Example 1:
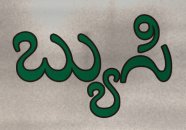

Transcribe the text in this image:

ಬ್ಯುಸಿ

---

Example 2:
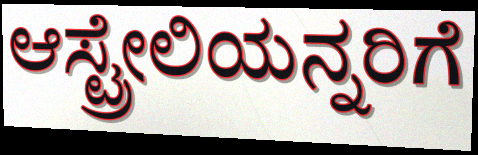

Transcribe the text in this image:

ಆಸ್ಟ್ರೇಲಿಯನ್ನರಿಗೆ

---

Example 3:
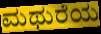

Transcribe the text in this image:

ಮಥುರೆಯ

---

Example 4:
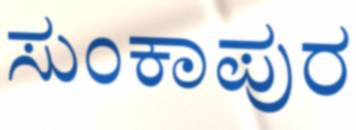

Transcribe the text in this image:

ಸುಂಕಾಪುರ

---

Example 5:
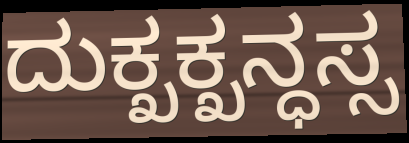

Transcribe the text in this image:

ದುಕ್ಖಕ್ಖನ್ಧಸ್ಸ